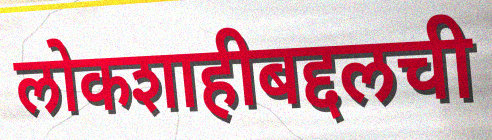
लोकशाहीबद्दलची